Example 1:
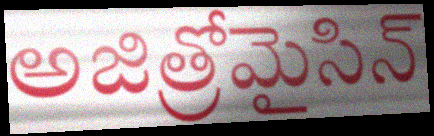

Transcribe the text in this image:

అజిత్రోమైసిన్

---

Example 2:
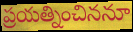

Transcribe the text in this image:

ప్రయత్నించిననూ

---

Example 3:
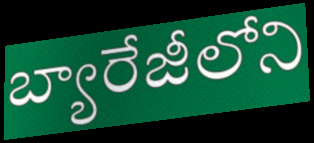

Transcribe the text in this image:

బ్యారేజీలోని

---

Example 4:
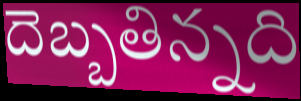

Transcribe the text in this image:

దెబ్బతిన్నది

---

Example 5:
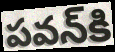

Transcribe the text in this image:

పవన్‌కి